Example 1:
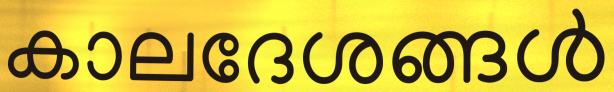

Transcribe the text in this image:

കാലദേശങ്ങൾ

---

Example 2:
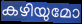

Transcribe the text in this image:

കഴിയുമോ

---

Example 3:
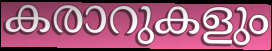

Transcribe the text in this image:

കരാറുകളും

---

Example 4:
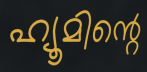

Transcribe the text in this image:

ഹ്യൂമിന്റെ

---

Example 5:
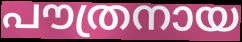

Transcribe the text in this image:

പൗത്രനായ